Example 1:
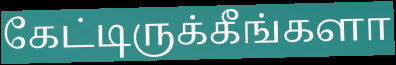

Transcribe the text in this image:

கேட்டிருக்கீங்களா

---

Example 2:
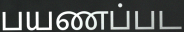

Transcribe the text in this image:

பயணப்பட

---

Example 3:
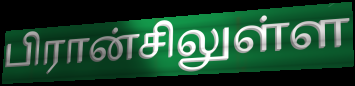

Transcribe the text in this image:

பிரான்சிலுள்ள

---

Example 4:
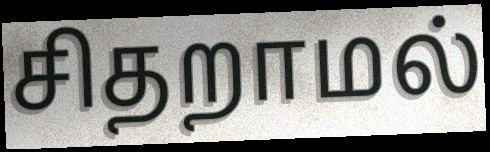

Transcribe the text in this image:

சிதறாமல்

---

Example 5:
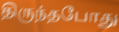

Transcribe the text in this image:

திருந்தபோது